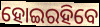
ହୋଇରହିବେ